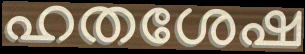
ഹതശേഷ